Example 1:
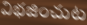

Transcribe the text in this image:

విభజించుట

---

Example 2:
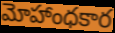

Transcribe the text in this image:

మోహాంధకార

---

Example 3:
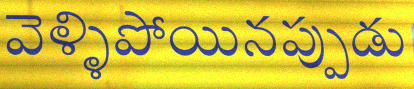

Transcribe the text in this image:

వెళ్ళిపోయినప్పుడు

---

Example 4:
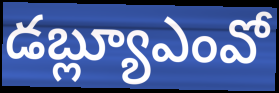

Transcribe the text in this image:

డబ్ల్యూఎంవో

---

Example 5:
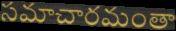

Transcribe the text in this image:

సమాచారమంతా